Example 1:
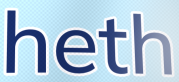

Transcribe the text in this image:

heth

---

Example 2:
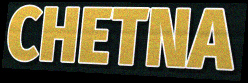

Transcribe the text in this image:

CHETNA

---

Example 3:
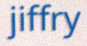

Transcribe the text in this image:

jiffry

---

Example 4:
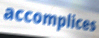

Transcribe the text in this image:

accomplices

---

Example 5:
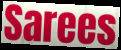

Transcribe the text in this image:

Sarees